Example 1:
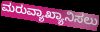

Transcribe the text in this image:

ಮರುವ್ಯಾಖ್ಯಾನಿಸಲು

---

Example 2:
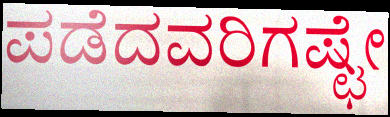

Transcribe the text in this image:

ಪಡೆದವರಿಗಷ್ಟೇ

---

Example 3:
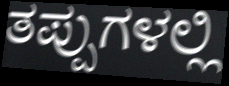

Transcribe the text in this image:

ತಪ್ಪುಗಳಲ್ಲಿ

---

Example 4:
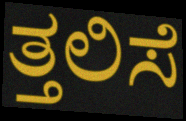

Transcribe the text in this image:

ತ್ತಲಿಸೆ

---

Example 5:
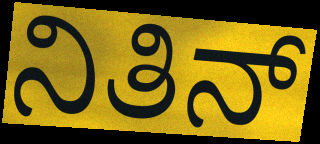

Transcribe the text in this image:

ನಿತಿನ್